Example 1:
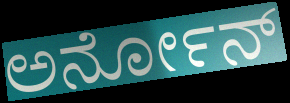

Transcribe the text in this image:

ಅರ್ನೋನ್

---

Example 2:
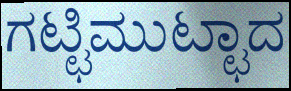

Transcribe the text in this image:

ಗಟ್ಟಿಮುಟ್ಟಾದ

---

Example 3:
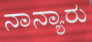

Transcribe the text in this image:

ನಾನ್ಯಾರು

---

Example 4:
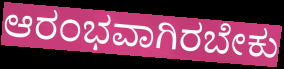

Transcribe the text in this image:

ಆರಂಭವಾಗಿರಬೇಕು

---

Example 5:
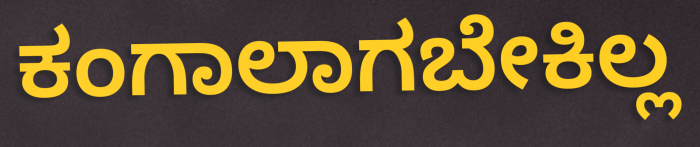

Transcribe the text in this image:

ಕಂಗಾಲಾಗಬೇಕಿಲ್ಲ